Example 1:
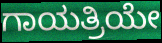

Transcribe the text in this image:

ಗಾಯತ್ರಿಯೇ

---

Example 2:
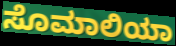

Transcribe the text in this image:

ಸೊಮಾಲಿಯಾ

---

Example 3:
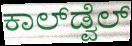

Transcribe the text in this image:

ಕಾಲ್‌ಡ್ವೆಲ್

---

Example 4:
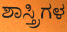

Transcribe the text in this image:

ಶಾಸ್ತ್ರಿಗಳ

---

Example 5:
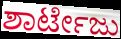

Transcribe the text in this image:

ಶಾರ್ಟೇಜು